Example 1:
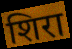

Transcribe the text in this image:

शिरा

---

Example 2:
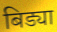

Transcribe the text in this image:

बिड्या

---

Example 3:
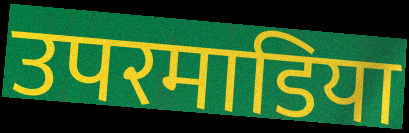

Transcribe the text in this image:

उपरमाडिया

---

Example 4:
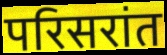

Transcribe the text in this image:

परिसरांत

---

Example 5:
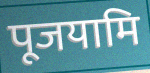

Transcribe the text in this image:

पूजयामि